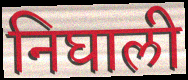
निघाली